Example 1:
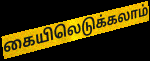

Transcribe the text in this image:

கையிலெடுக்கலாம்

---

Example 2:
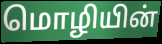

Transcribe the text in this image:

மொழியின்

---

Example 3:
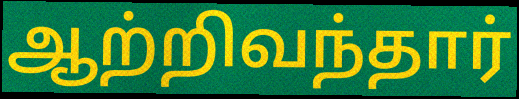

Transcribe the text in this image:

ஆற்றிவந்தார்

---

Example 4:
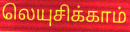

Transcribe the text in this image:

லெயுசிக்காம்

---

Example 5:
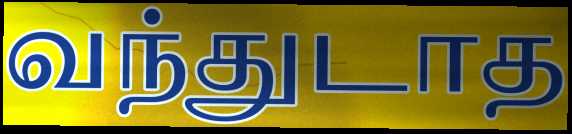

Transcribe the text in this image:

வந்துடாத